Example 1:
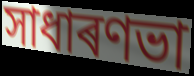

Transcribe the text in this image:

সাধাৰণভা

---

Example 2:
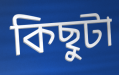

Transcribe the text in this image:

কিছুটা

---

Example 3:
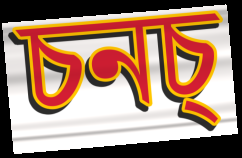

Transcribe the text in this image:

চনচ্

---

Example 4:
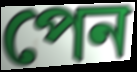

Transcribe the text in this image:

পেন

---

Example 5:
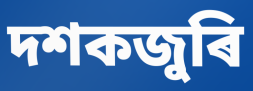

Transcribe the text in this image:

দশকজুৰি